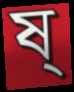
ষ্